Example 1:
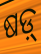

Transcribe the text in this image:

ଷଡ଼୍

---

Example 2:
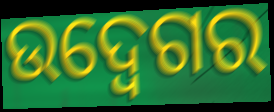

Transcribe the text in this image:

ଉଦ୍ବେଗର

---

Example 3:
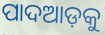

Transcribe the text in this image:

ପାଦଆଡ଼କୁ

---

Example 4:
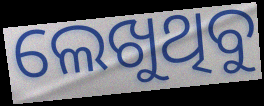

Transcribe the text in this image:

ଲେଖୁଥିବୁ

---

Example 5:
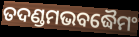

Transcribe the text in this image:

ତଦଣ୍ଡମଭବଦ୍ଧୈମଂ